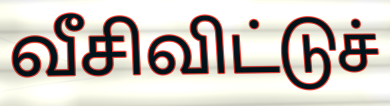
வீசிவிட்டுச்